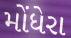
મોંધેરા